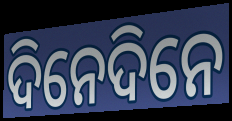
ଦିନେଦିନେ